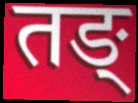
तङ्